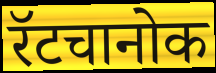
रॅटचानोक